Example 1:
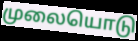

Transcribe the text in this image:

முலையொடு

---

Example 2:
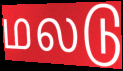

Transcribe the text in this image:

மலடு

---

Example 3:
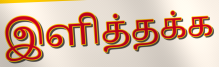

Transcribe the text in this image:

இளித்தக்க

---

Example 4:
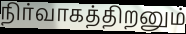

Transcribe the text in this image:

நிர்வாகத்திறனும்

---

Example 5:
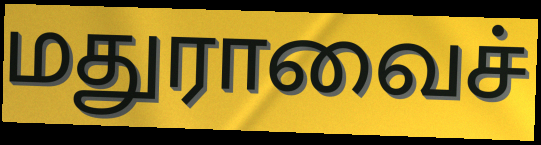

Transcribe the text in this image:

மதுராவைச்